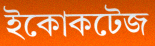
ইকোকটেজ